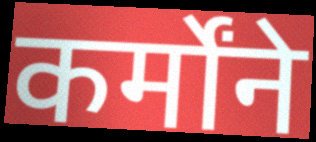
कर्मोंने